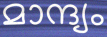
മാന്ദ്യം